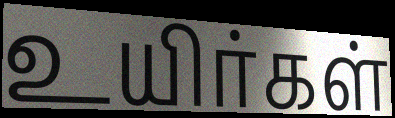
உயிர்கள்